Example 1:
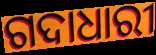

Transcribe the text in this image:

ଗଦାଧାରୀ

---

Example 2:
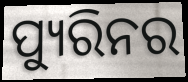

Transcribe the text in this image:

ପ୍ୟୁରିନର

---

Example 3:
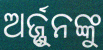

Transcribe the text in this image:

ଅର୍ଜ୍ଜୁନଙ୍କୁ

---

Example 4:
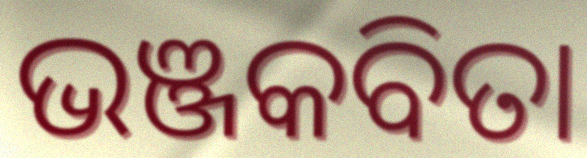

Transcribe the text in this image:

ଭଞ୍ଜକବିତା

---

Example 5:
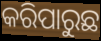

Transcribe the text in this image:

କରିପାରୁଛ